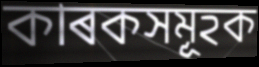
কাৰকসমূহক